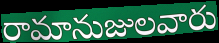
రామానుజులవారు